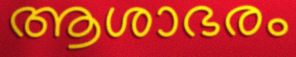
ആശാഭരം